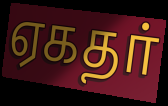
ஏகதர்